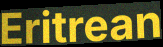
Eritrean